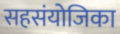
सहसंयोजिका